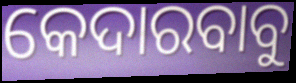
କେଦାରବାବୁ